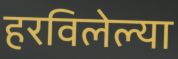
हरविलेल्या